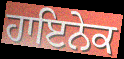
ਹਾਇਨੇਕ